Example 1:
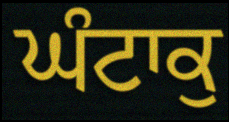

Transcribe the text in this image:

ਘੰਟਾਕੁ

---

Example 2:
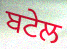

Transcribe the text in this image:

ਬਟੇਲ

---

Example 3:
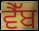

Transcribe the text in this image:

ਵੈੱਬ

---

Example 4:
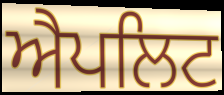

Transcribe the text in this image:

ਐਪਲਿਟ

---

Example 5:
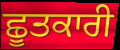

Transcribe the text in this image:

ਛੂਤਕਾਰੀ